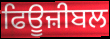
ਫਿਊਜ਼ੀਬਲ